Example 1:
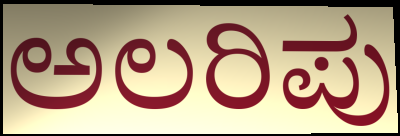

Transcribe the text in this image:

ಅಲರಿಪು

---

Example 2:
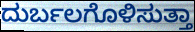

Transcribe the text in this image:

ದುರ್ಬಲಗೊಳಿಸುತ್ತಾ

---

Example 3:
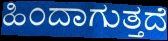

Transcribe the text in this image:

ಹಿಂದಾಗುತ್ತದೆ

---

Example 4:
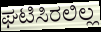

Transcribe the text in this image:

ಘಟಿಸಿರಲಿಲ್ಲ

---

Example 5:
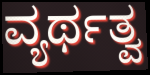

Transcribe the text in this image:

ವ್ಯರ್ಥತ್ವ